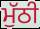
ਮੁੱਠੀ